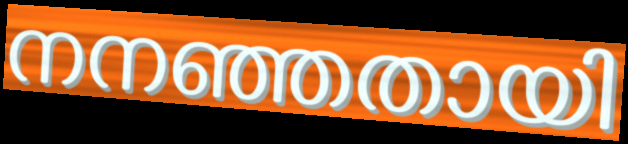
നനഞ്ഞതായി